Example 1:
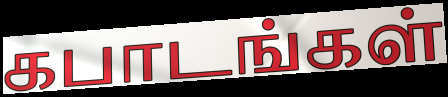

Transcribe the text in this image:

கபாடங்கள்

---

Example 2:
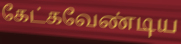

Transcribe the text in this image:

கேட்கவேண்டிய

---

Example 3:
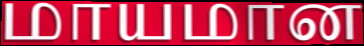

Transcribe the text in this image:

மாயமான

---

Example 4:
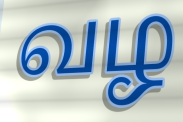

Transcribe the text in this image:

வழ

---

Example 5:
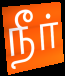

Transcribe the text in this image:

நீர்